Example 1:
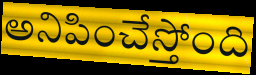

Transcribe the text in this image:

అనిపించేస్తోంది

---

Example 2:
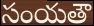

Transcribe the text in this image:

సంయతౌ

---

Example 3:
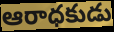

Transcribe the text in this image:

ఆరాధకుడు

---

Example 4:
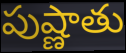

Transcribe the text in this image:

పుష్ణాతు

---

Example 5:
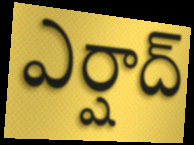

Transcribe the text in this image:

ఎర్షాద్